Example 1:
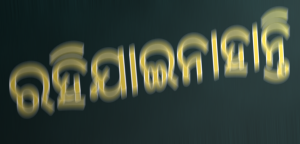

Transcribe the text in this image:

ରହିଯାଇନାହାନ୍ତି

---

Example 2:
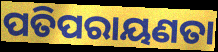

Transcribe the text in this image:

ପତିପରାୟଣତା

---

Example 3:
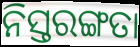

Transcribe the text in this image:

ନିସ୍ତରଙ୍ଗତା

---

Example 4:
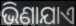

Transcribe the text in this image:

ଭିଣାଯାଏ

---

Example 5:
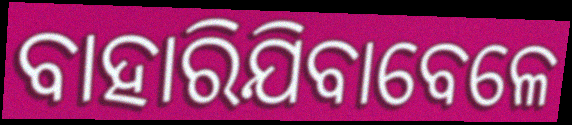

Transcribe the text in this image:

ବାହାରିଯିବାବେଳେ